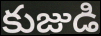
కుజుడి